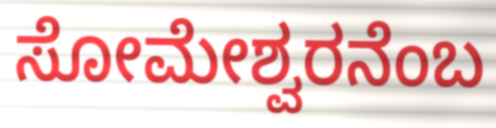
ಸೋಮೇಶ್ವರನೆಂಬ